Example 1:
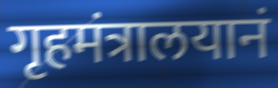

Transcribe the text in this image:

गृहमंत्रालयानं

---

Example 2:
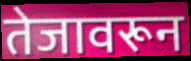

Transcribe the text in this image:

तेजावरून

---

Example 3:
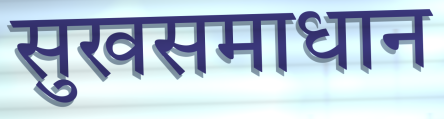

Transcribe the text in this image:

सुखसमाधान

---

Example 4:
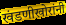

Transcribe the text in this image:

खंडणीखोरांनी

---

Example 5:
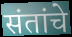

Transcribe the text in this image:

संतांचे